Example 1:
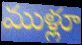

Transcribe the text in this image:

ముళ్లూ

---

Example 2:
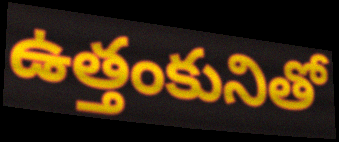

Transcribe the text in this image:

ఉత్తంకునితో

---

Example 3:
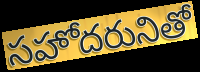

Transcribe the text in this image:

సహోదరునితో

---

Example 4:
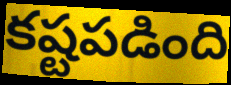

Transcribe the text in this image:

కష్టపడింది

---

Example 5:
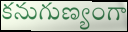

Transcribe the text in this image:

కనుగుణ్యంగా